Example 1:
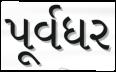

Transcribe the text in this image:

પૂર્વધર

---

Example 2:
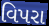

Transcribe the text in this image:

વિપરા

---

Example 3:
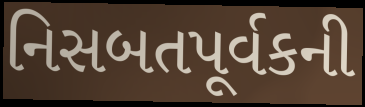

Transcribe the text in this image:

નિસબતપૂર્વકની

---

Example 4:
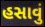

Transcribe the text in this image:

હસાવું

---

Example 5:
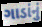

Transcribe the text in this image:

ગાડાંનું